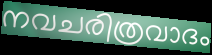
നവചരിത്രവാദം